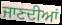
ਜਾਣਦੀਆਂ